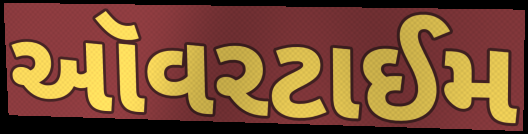
ઑવરટાઈમ